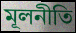
মূলনীতি